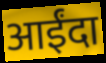
आईंदा